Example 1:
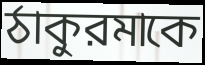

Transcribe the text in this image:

ঠাকুরমাকে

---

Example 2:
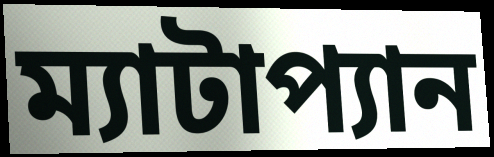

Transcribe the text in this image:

ম্যাটাপ্যান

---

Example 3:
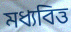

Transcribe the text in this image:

মধ্যবিত্ত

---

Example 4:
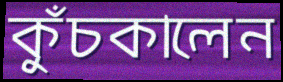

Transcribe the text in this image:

কুঁচকালেন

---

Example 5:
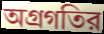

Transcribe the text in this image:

অগ্রগতির